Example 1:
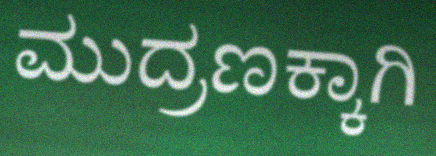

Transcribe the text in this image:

ಮುದ್ರಣಕ್ಕಾಗಿ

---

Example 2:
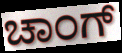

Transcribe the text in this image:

ಚಾಂಗ್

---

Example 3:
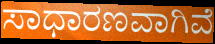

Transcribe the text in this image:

ಸಾಧಾರಣವಾಗಿವೆ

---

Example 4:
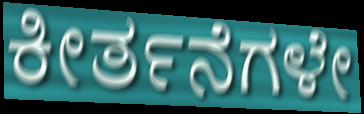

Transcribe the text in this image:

ಕೀರ್ತನೆಗಳೇ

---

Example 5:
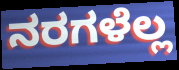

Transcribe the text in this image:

ನರಗಳೆಲ್ಲ